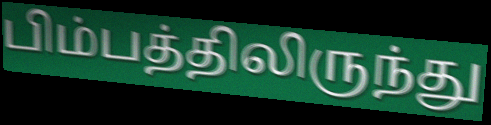
பிம்பத்திலிருந்து